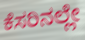
ಕೆಸರಿನಲ್ಲೇ